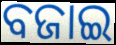
ବଜାଇ